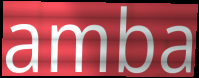
amba